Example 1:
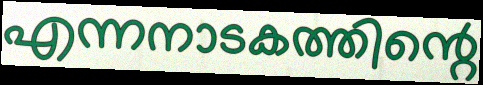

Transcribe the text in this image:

എന്നനാടകത്തിന്റെ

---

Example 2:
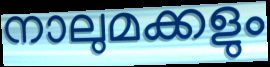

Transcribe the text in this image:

നാലുമക്കളും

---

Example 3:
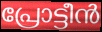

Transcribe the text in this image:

പ്രോട്ടീൻ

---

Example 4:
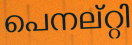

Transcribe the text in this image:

പെനല്റ്റി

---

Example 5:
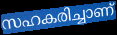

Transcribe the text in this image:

സഹകരിച്ചാണ്